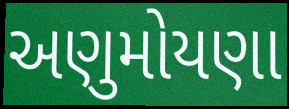
અણુમોયણા